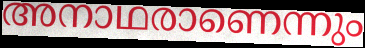
അനാഥരാണെന്നും